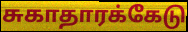
சுகாதாரக்கேடு